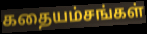
கதையம்சங்கள்